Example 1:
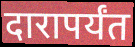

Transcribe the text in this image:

दारापर्यंत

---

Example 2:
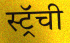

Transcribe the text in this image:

स्ट्रॅची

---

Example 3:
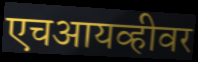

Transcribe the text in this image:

एचआयव्हीवर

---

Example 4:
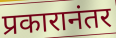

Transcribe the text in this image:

प्रकारानंतर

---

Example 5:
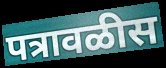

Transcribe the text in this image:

पत्रावळीस